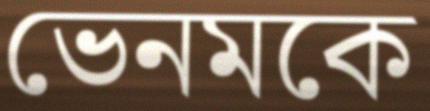
ভেনমকে